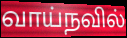
வாய்நவில்